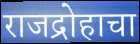
राजद्रोहाचा